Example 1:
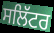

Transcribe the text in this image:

ਸਲਿੱਟਰ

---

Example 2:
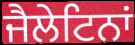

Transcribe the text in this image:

ਜੈਲੇਟਿਨਾਂ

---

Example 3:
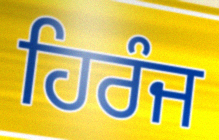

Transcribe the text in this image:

ਹਿਰੰਜ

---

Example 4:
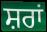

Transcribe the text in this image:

ਸ਼ਰਾਂ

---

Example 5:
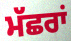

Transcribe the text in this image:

ਮੱਛਰਾਂ